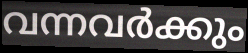
വന്നവർക്കും